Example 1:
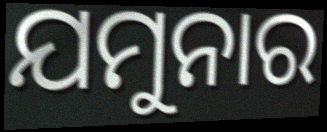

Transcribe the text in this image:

ଯମୁନାର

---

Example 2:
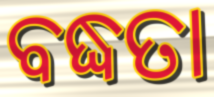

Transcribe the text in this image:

ବଦ୍ଧତା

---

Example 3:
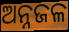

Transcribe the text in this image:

ଅନ୍ନଜଳ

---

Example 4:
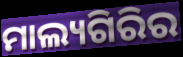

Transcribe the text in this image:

ମାଲ୍ୟଗିରିର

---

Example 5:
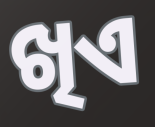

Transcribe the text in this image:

ଖିଏ